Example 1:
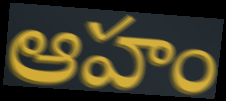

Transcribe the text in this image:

ఆహం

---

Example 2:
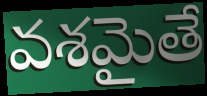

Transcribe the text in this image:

వశమైతే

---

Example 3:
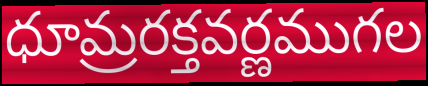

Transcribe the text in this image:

ధూమ్రరక్తవర్ణముగల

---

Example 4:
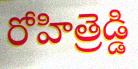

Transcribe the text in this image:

రోహిత్రెడ్డి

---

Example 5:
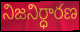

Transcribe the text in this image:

నిజనిర్ధారణ